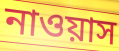
নাওয়াস